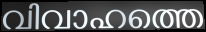
വിവാഹത്തെ